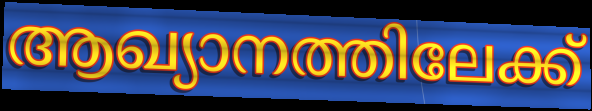
ആഖ്യാനത്തിലേക്ക്